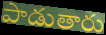
పాడుతారు